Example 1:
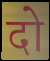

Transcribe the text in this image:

दो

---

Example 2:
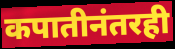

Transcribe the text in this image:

कपातीनंतरही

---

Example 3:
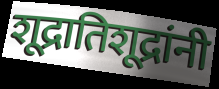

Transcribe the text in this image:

शूद्रातिशूद्रांनी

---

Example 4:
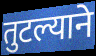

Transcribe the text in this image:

तुटल्याने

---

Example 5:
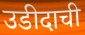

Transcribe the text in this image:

उडीदाची